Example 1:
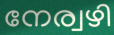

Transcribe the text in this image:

നേര്വഴി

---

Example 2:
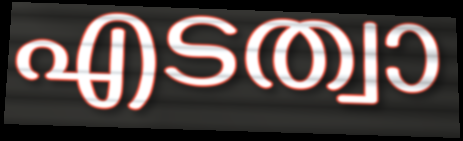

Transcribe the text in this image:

എടത്വാ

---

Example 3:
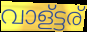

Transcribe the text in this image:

വാള്ട്ടര്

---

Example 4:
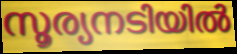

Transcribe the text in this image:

സൂര്യനടിയിൽ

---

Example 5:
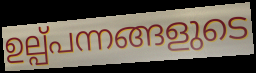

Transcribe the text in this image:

ഉല്പ്പന്നങ്ങളുടെ